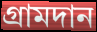
গ্রামদান